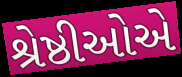
શ્રેષ્ઠીઓએ